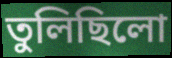
তুলিছিলো